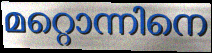
മറ്റൊന്നിനെ